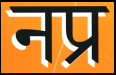
नप्र